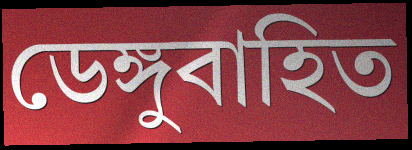
ডেঙ্গুবাহিত